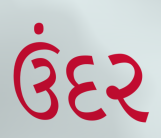
ઉંદર